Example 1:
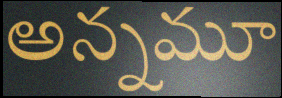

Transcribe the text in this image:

అన్నమూ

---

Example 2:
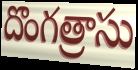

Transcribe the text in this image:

దొంగత్రాసు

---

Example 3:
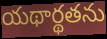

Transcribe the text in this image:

యథార్థతను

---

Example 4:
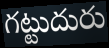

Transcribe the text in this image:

గట్టుదురు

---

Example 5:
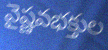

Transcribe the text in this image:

వైష్ణవభక్తుల